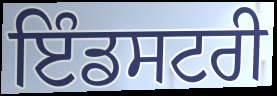
ਇੰਡਸਟਰੀ